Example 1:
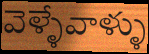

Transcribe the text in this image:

వెళ్ళేవాళ్ళు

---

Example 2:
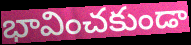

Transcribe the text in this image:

భావించకుండా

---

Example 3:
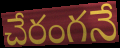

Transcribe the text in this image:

చేరంగనే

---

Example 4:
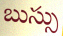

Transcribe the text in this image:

బుస్సు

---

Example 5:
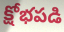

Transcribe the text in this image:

క్షోభపడి